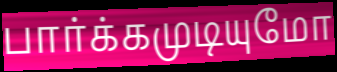
பார்க்கமுடியுமோ